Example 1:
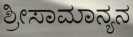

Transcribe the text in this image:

ಶ್ರೀಸಾಮಾನ್ಯನ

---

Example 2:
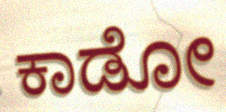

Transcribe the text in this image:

ಕಾಡೋ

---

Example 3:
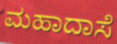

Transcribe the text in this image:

ಮಹಾದಾಸೆ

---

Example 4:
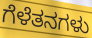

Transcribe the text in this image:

ಗೆಳೆತನಗಳು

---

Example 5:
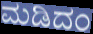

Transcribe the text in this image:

ಮಡಿದಂ